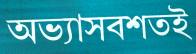
অভ্যাসবশতই